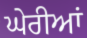
ਘੇਰੀਆਂ